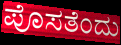
ಪೊಸತೆಂದು